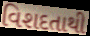
વિશદતાથી